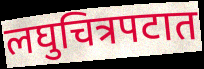
लघुचित्रपटात